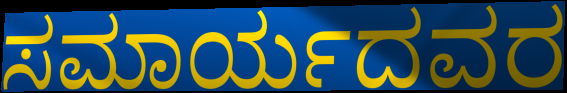
ಸಮಾರ್ಯದವರ